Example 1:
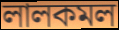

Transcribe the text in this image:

লালকমল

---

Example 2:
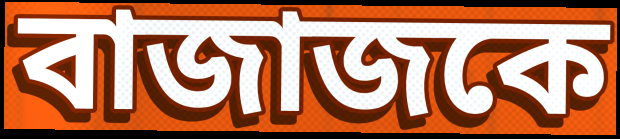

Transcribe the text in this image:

বাজাজকে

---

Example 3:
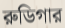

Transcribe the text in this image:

রুডিগার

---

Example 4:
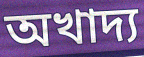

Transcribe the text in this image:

অখাদ্য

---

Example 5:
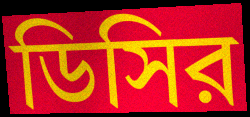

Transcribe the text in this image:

ডিসির